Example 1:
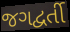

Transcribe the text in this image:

જગદ્વર્તી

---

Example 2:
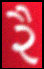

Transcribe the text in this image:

રૈ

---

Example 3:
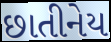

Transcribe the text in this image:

છાતીનેય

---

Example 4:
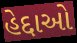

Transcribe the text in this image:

હેદ્દાઓ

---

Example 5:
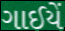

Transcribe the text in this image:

ગાઈયેં